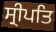
ਸ੍ਰੀਪਤਿ